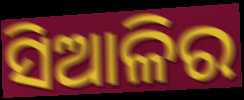
ସିଆଳିର